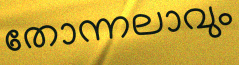
തോന്നലാവും